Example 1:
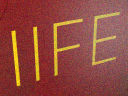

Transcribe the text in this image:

IIFE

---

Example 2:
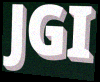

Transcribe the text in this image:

JGI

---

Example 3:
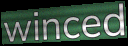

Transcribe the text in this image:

winced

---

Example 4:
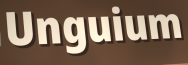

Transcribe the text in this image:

Unguium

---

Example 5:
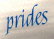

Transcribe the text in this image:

prides